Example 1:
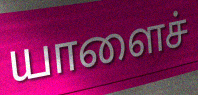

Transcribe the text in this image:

யாளைச்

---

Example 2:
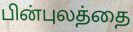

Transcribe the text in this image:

பின்புலத்தை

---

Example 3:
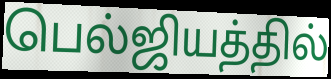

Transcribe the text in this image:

பெல்ஜியத்தில்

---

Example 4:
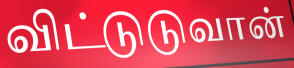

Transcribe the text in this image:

விட்டுடுவான்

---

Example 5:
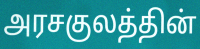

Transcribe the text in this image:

அரசகுலத்தின்